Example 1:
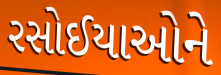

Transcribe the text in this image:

રસોઈયાઓને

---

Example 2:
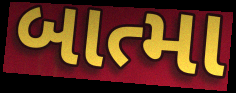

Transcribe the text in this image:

બાત્મા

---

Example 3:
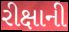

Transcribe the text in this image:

રીક્ષાની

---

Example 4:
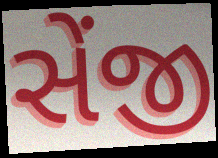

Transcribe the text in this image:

સેંજી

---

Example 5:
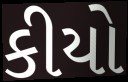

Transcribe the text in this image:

કીયો